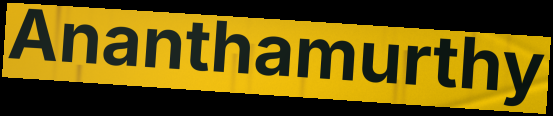
Ananthamurthy